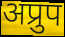
अप्रुप